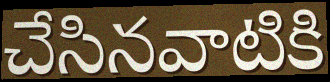
చేసినవాటికి